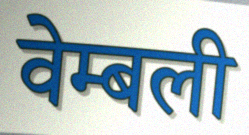
वेम्बली